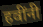
हवींनी